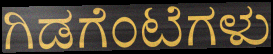
ಗಿಡಗೆಂಟೆಗಳು